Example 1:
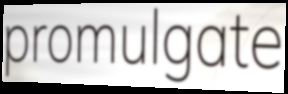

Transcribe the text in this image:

promulgate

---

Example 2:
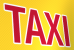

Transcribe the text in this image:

TAXI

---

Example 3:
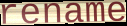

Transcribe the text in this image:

rename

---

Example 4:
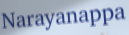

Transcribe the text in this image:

Narayanappa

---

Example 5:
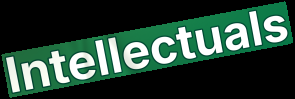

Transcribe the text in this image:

Intellectuals